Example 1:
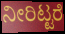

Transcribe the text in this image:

ನೀರಿಟ್ಟರೆ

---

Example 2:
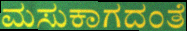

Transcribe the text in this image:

ಮಸುಕಾಗದಂತೆ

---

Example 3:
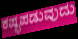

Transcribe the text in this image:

ಕಷ್ಟಪಡುವುದು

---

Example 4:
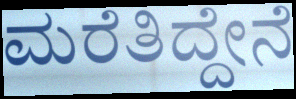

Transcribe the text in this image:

ಮರೆತಿದ್ದೇನೆ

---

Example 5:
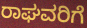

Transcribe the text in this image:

ರಾಘವರಿಗೆ